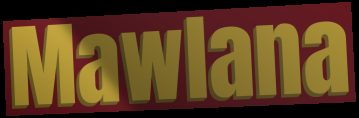
Mawlana